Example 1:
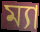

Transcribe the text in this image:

ম্যা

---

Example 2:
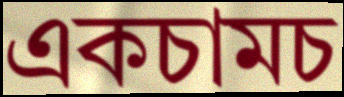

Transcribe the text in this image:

একচামচ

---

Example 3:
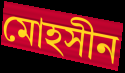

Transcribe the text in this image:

মোহসীন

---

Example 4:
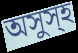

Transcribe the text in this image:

অসুস্হ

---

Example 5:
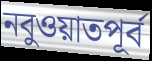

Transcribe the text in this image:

নবুওয়াতপূর্ব